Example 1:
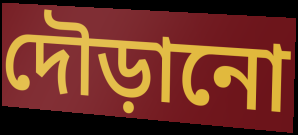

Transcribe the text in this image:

দৌড়ানো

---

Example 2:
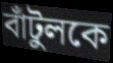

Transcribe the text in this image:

বাঁটুলকে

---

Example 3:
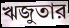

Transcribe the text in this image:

ঋজুতার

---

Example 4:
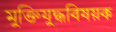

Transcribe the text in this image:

মুক্তিযুদ্ধবিষয়ক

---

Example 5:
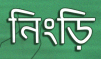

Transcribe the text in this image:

নিংড়ি